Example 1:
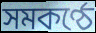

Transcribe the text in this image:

সমকণ্ঠে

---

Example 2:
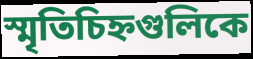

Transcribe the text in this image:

স্মৃতিচিহ্নগুলিকে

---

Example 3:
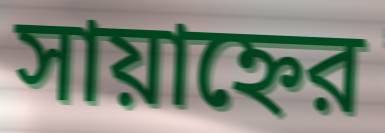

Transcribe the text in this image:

সায়াহ্নের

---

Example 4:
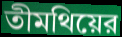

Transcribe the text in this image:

তীমথিয়ের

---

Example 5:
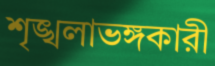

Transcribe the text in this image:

শৃঙ্খলাভঙ্গকারী